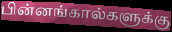
பின்னங்கால்களுக்கு